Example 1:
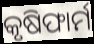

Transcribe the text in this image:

କୃଷିଫାର୍ମ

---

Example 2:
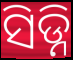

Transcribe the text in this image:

ସିଡ୍ନି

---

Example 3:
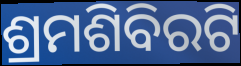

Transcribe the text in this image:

ଶ୍ରମଶିବିରଟି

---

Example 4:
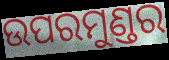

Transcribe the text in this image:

ଉପରମୁଣ୍ଡର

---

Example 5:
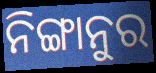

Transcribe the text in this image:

ନିଙ୍ଗାନୁର